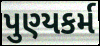
પુણ્યકર્મ